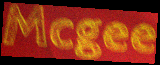
Mcgee